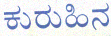
ಕುರುಹಿನ